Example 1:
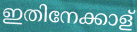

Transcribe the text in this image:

ഇതിനേക്കാള്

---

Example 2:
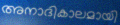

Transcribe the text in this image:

അനാദികാലമായി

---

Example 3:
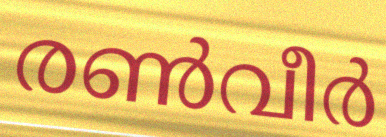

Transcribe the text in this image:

രൺവീർ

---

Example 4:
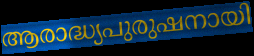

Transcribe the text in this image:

ആരാദ്ധ്യപുരുഷനായി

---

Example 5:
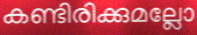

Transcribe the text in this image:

കണ്ടിരിക്കുമല്ലോ